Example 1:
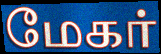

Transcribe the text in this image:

மேகர்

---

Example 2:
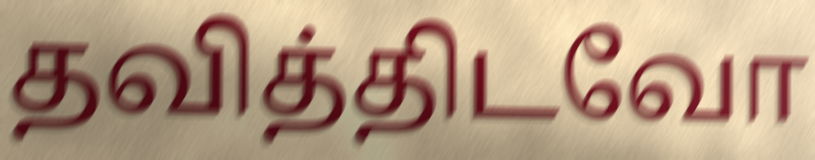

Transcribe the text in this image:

தவித்திடவோ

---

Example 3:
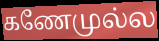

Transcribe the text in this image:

கணேமுல்ல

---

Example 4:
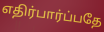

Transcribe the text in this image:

எதிர்பார்ப்பதே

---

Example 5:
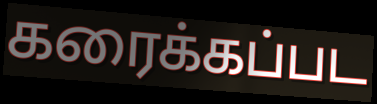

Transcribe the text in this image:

கரைக்கப்பட